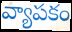
వ్యాపకం